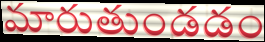
మారుతుండడం